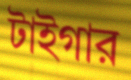
টাইগার